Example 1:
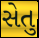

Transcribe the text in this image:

સેતુ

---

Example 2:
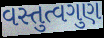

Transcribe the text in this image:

વસ્તુત્વગુણ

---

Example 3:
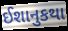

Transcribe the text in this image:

ઈશાનુકથા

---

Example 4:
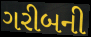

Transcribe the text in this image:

ગરીબની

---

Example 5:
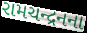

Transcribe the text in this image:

રામચન્દ્રનના